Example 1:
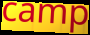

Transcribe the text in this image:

camp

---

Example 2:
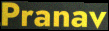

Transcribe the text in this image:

Pranav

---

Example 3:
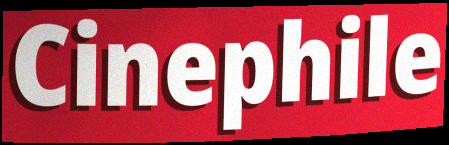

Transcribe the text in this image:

Cinephile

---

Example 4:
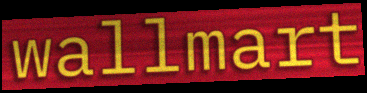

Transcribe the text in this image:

wallmart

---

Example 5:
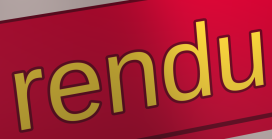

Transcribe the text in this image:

rendu